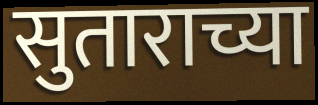
सुताराच्या